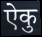
ऐकु